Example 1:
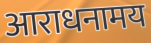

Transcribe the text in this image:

आराधनामय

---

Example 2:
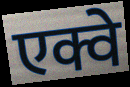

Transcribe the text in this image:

एक्वे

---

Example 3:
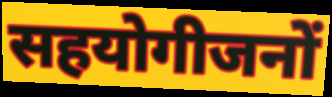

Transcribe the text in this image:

सहयोगीजनों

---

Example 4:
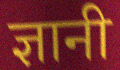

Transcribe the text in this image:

ज्ञानी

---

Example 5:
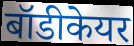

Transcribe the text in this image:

बॉडीकेयर